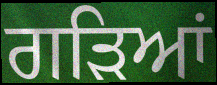
ਗੜਿਆਂ